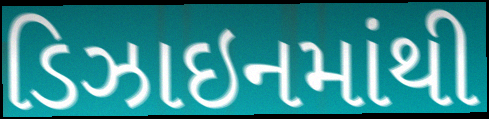
ડિઝાઇનમાંથી